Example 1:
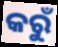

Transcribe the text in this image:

କରୁଁ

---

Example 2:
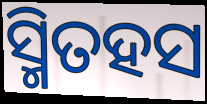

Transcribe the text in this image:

ସ୍ମିତହସ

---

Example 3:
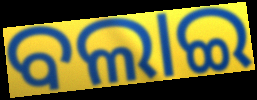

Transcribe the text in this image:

ବଲାଇ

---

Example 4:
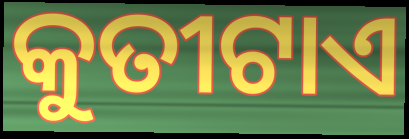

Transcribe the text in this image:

କୁତୀଟାଏ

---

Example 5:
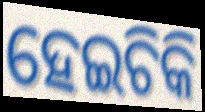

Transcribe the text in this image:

ହେଇଚିକି